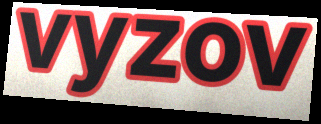
vyzov